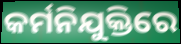
କର୍ମନିଯୁକ୍ତିରେ